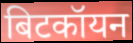
बिटकॉयन